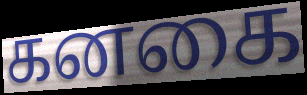
கனகை